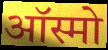
ऑस्मो